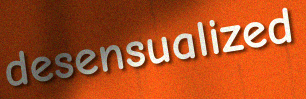
desensualized